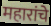
महारांचे